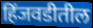
हिंजवडीतील